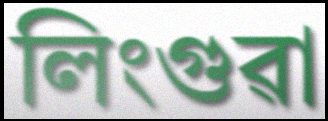
লিংগুৱা